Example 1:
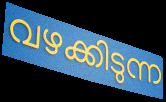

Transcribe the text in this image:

വഴക്കിടുന്ന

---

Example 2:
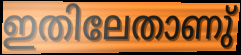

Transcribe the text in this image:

ഇതിലേതാണു്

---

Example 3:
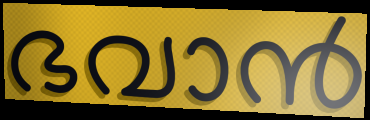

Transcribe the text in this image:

ഭവാൻ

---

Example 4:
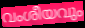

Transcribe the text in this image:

വംശീയവും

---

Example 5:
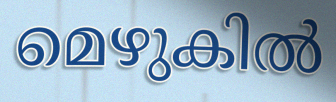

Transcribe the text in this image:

മെഴുകിൽ